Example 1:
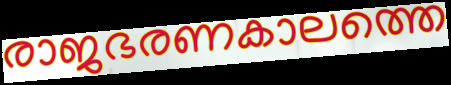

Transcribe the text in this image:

രാജഭരണകാലത്തെ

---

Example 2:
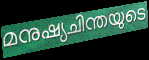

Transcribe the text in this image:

മനുഷ്യചിന്തയുടെ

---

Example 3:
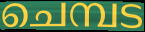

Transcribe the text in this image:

ചെമ്പട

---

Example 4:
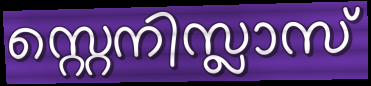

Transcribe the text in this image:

സ്റ്റെനിസ്ലാസ്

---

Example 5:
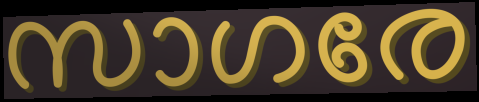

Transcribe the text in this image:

സാഗരേ